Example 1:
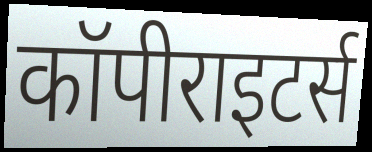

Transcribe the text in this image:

कॉपीराइटर्स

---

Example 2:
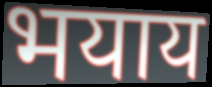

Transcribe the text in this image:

भयाय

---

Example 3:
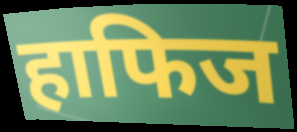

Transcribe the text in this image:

हाफिज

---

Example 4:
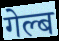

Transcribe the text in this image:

गेल्ब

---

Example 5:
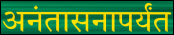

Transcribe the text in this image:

अनंतासनापर्यंत